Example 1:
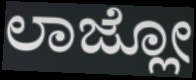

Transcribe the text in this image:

ಲಾಜ್ಲೋ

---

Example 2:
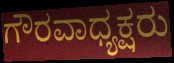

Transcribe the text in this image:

ಗೌರವಾಧ್ಯಕ್ಷರು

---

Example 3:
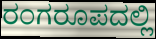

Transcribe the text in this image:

ರಂಗರೂಪದಲ್ಲಿ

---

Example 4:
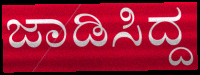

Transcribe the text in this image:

ಜಾಡಿಸಿದ್ದ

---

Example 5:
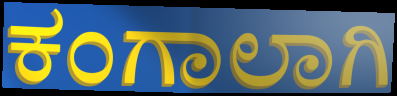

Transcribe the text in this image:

ಕಂಗಾಲಾಗಿ